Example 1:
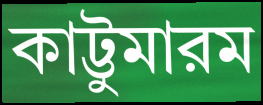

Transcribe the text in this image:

কাট্টুমারম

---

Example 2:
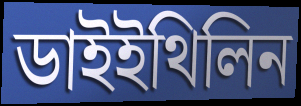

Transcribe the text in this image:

ডাইইথিলিন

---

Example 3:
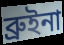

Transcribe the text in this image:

ব্রুইনা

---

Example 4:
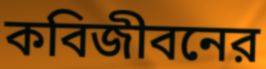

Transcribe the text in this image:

কবিজীবনের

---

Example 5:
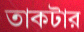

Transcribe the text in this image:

তাকটার